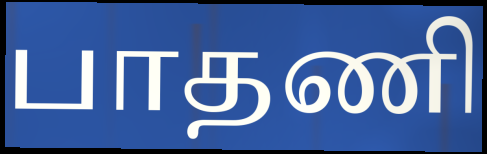
பாதணி